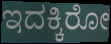
ಇದಕ್ಕಿರೋ